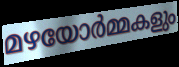
മഴയോർമ്മകളും